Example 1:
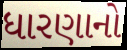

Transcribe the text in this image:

ધારણાનો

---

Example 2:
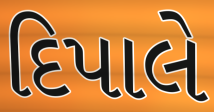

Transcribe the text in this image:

દિપાલે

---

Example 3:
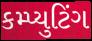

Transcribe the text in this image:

કમ્પ્યુટિંગ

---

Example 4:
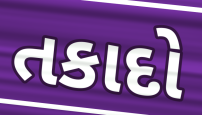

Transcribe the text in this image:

તકાદો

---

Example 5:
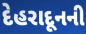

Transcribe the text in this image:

દેહરાદૂનની